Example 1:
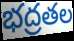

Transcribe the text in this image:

భద్రతల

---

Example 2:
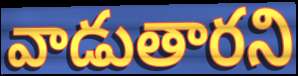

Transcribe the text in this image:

వాడుతారని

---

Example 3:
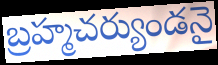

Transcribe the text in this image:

బ్రహ్మచర్యుండనై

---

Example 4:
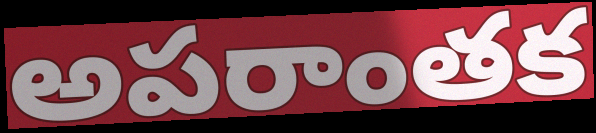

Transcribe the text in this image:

అపరాంతక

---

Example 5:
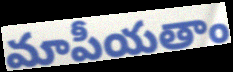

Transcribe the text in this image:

మాపీయతాం